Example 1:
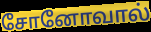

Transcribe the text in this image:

சோனோவால்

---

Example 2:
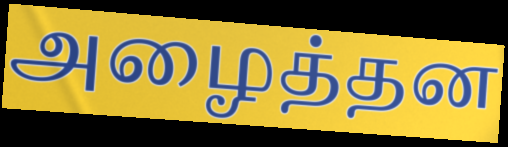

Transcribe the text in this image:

அழைத்தன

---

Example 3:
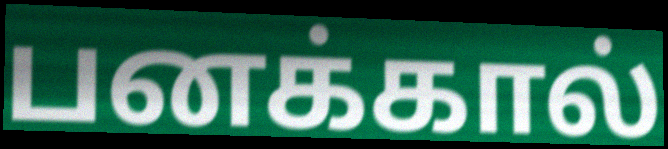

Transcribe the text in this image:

பனக்கால்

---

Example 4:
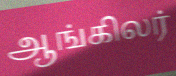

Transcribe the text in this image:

ஆங்கிலர்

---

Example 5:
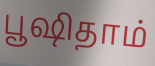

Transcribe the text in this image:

பூஷிதாம்